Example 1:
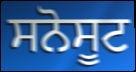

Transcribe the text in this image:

ਸਨੋਸੂਟ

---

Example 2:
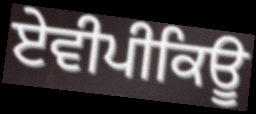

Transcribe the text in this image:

ਏਵੀਪੀਕਿਊ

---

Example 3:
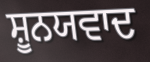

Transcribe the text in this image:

ਸ਼ੂਨਯਵਾਦ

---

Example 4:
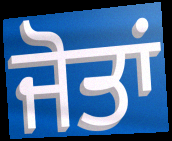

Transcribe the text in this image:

ਜੋਤਾਂ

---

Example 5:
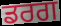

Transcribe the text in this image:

ਡਰਗ